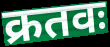
क्रतवः